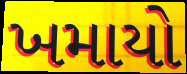
ખમાયો